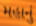
મહાનું